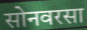
सोनवरसा